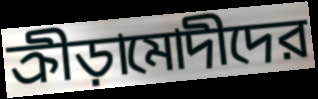
ক্রীড়ামোদীদের